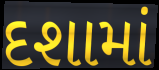
દશામાં